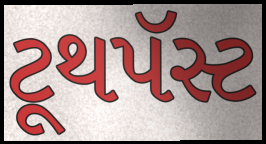
ટૂથપૅસ્ટ